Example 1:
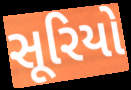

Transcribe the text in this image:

સૂરિયો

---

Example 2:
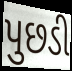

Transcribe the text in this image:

પુછડી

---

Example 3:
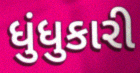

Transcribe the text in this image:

ધુંધુકારી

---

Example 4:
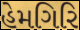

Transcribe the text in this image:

હેમગિરિ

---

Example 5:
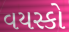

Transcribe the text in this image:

વયસ્કો